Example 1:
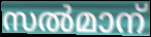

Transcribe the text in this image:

സൽമാന്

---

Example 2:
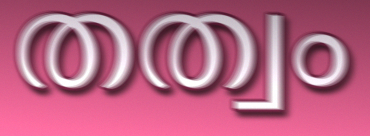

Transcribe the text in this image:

തത്വം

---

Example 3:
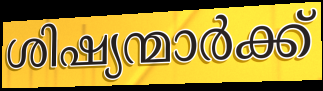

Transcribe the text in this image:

ശിഷ്യന്മാർക്ക്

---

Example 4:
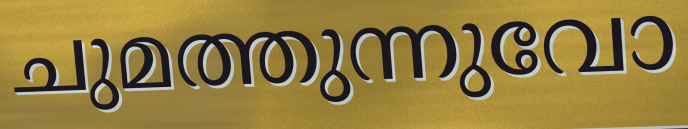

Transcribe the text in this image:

ചുമത്തുന്നുവോ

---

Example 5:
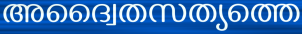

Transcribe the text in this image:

അദ്വൈതസത്യത്തെ